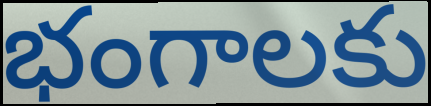
భంగాలకు